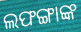
ଲଫଙ୍ଗାଙ୍କ